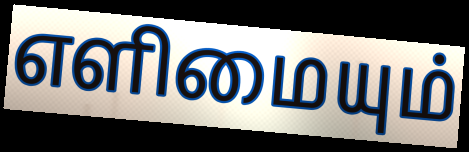
எளிமையும்